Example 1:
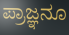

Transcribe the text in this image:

ಪ್ರಾಜ್ಞನೂ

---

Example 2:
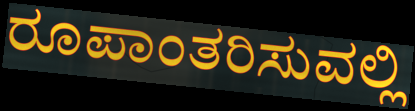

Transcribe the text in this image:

ರೂಪಾಂತರಿಸುವಲ್ಲಿ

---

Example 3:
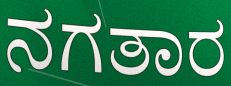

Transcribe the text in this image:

ನಗತಾರ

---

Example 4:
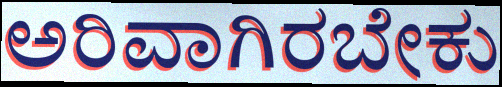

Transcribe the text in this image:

ಅರಿವಾಗಿರಬೇಕು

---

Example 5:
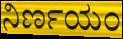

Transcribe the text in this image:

ನಿರ್ಣಯಂ